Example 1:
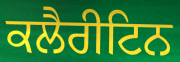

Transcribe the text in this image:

ਕਲੈਰੀਟਿਨ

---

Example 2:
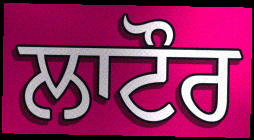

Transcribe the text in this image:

ਲਾਟੌਰ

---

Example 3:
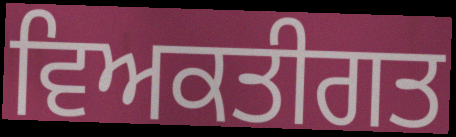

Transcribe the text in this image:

ਵਿਅਕਤੀਗਤ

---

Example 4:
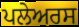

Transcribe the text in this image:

ਪਲੇਅਰਸ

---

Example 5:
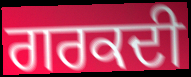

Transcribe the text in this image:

ਗਰਕਦੀ